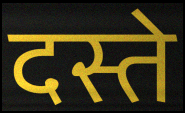
दस्ते